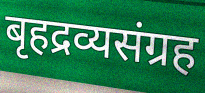
बृहद्रव्यसंग्रह